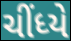
ચીંધ્યે